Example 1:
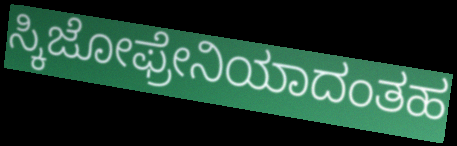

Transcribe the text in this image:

ಸ್ಕಿಜೋಫ್ರೇನಿಯಾದಂತಹ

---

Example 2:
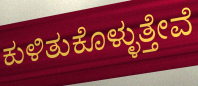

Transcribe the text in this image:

ಕುಳಿತುಕೊಳ್ಳುತ್ತೇವೆ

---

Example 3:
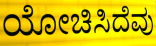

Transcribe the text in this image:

ಯೋಚಿಸಿದೆವು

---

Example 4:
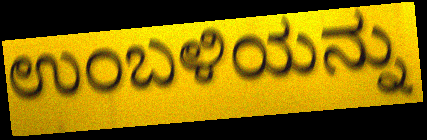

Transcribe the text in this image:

ಉಂಬಳಿಯನ್ನು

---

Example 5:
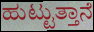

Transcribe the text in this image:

ಹುಟ್ಟುತ್ತಾನೆ